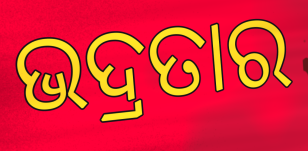
ଭଦ୍ରତାର